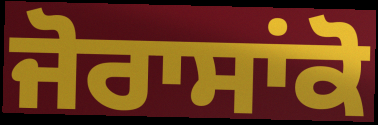
ਜੋਰਾਸਾਂਕੋ